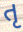
તૃ